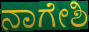
ನಾಗೇಶಿ